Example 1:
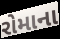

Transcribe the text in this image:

રોમાના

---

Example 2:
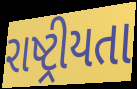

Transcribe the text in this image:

રાષ્ટ્રીયતા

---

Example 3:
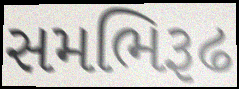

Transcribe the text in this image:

સમભિરૂઢ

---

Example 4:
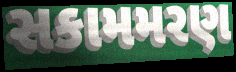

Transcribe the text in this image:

સકામમરણ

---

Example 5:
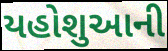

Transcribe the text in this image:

યહોશુઆની